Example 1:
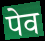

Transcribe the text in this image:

पेव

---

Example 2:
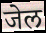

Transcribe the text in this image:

जेल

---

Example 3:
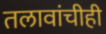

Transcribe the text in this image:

तलावांचीही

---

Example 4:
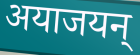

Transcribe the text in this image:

अयाजयन्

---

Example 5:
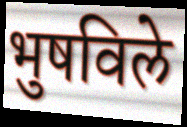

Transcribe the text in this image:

भुषविले